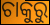
ଚାକୁରୁ